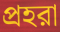
প্রহরা